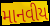
માનવીય